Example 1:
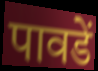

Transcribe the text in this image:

पावडें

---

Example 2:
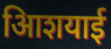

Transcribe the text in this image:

आिशयाई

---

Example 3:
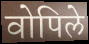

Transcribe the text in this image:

वोपिले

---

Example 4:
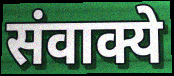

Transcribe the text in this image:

संवाक्ये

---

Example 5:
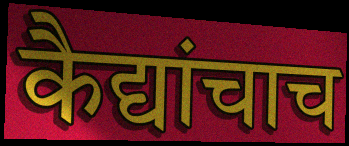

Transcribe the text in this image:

कैद्यांचाच